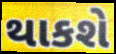
થાકશે